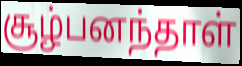
சூழ்பனந்தாள்